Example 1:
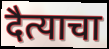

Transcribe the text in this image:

दैत्याचा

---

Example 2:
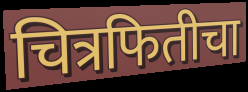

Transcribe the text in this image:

चित्रफितीचा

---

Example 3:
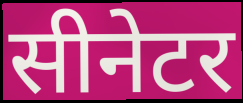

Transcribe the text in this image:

सीनेटर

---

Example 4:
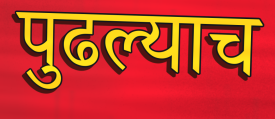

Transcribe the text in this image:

पुढल्याच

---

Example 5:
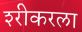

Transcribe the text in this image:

श्रीकरला